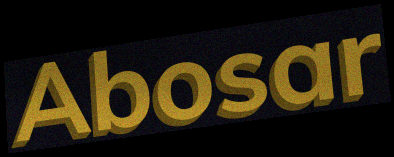
Abosar